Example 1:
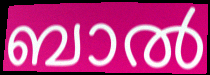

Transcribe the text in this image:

ബാൽ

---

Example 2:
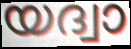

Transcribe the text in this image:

യദ്വാ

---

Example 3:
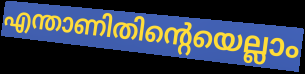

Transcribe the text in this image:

എന്താണിതിന്റെയെല്ലാം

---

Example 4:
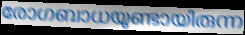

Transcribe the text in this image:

രോഗബാധയുണ്ടായിരുന്ന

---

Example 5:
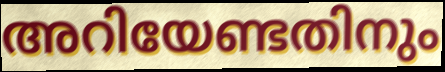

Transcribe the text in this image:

അറിയേണ്ടതിനും